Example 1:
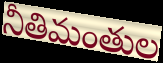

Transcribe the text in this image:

నీతిమంతుల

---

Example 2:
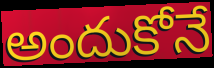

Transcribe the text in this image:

అందుకోనే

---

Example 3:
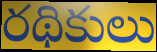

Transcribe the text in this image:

రథికులు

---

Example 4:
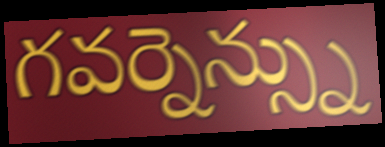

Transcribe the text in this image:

గవర్నెన్స్ను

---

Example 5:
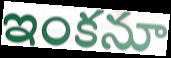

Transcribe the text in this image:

ఇంకనూ